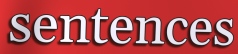
sentences